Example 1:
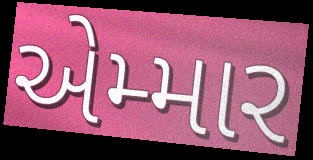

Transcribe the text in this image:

એમ્માર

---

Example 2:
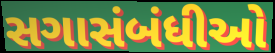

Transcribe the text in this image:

સગાસંબંધીઓ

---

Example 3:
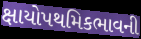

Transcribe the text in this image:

ક્ષાયોપથમિકભાવની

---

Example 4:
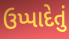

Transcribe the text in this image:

ઉપ્પાદેતું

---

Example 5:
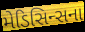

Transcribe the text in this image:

મેડિસિન્સના